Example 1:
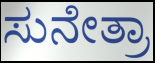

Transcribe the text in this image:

ಸುನೇತ್ರಾ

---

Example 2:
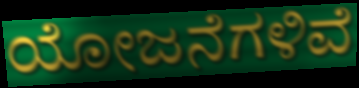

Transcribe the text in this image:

ಯೋಜನೆಗಳಿವೆ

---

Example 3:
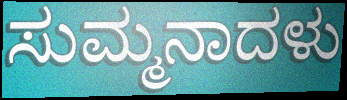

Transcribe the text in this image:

ಸುಮ್ಮನಾದಳು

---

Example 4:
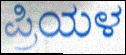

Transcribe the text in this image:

ಪ್ರಿಯಳ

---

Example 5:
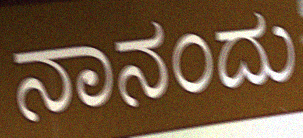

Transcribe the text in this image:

ನಾನಂದು